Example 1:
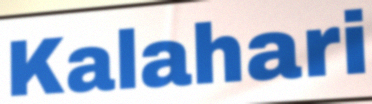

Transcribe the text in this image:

Kalahari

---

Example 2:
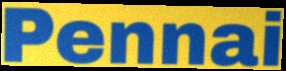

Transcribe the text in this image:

Pennai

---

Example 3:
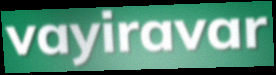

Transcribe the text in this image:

vayiravar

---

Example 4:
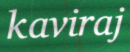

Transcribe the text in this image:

kaviraj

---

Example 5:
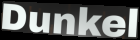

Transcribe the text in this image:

Dunkel